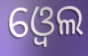
ଓ୍ବେଲ